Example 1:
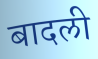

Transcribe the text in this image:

बादली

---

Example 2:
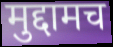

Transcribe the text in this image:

मुद्दामच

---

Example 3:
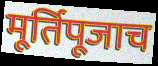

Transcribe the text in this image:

मूर्तिपूजाच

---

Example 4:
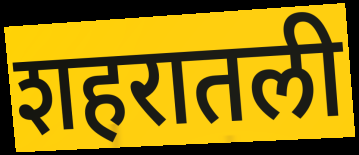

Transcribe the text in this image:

शहरातली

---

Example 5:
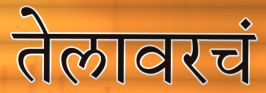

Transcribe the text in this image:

तेलावरचं